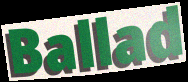
Ballad